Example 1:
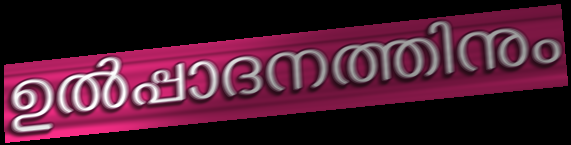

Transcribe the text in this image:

ഉൽപ്പാദനത്തിനും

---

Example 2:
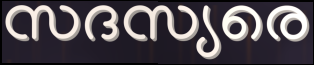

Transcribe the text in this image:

സദസ്യരെ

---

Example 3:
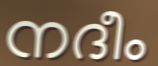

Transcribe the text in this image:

നദീം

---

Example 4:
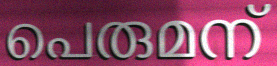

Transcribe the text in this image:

പെരുമന്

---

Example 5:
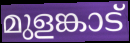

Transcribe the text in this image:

മുളങ്കാട്